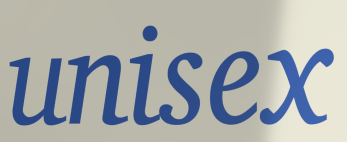
unisex